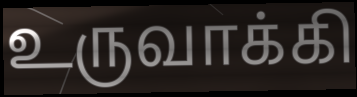
உருவாக்கி